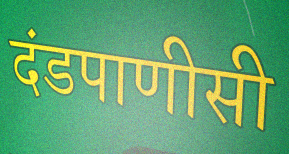
दंडपाणीसी